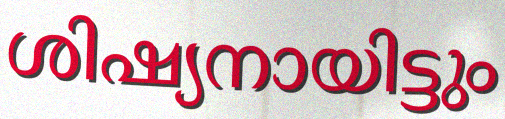
ശിഷ്യനായിട്ടും